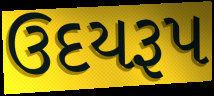
ઉદયરૂપ